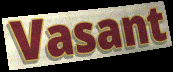
Vasant